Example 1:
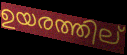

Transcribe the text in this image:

ഉയരത്തില്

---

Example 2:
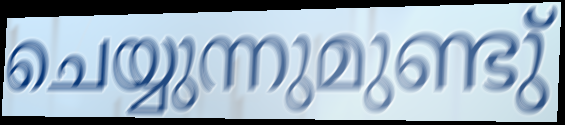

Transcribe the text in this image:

ചെയ്യുന്നുമുണ്ടു്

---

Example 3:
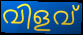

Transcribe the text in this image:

വിളവ്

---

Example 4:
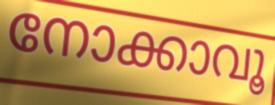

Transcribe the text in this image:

നോക്കാവൂ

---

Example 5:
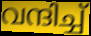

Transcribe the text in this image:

വന്ദിച്ച്